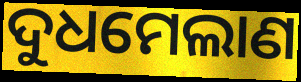
ଦୁଧମେଲାଣ